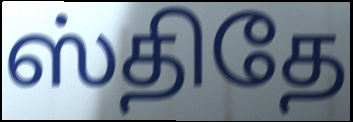
ஸ்திதே